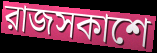
রাজসকাশে